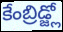
కేంబ్రిడ్జ్లో